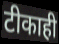
टीकाही